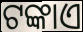
ଟଙ୍କାଏ